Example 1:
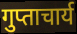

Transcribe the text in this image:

गुप्ताचार्य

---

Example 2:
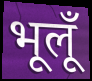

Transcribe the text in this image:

भूलूँ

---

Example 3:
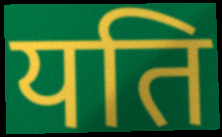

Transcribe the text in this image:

यति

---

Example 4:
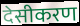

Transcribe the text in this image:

देसीकरण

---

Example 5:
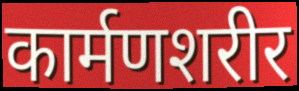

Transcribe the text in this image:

कार्मणशरीर